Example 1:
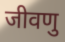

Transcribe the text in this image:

जीवणु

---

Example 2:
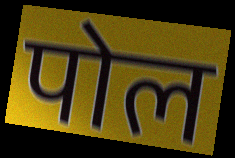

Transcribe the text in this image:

पोल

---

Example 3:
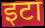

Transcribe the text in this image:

इटा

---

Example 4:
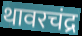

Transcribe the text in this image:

थावरचंद्र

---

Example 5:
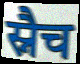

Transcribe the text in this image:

स्नैच